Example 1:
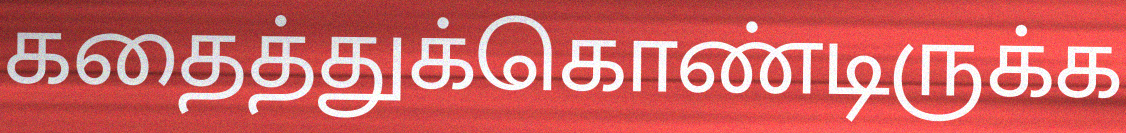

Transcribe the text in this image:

கதைத்துக்கொண்டிருக்க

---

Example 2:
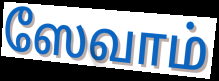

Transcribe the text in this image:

ஸேவாம்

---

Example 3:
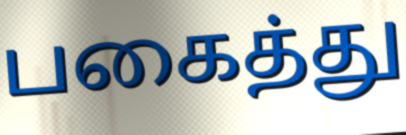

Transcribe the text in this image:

பகைத்து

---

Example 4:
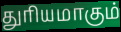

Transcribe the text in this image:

துரியமாகும்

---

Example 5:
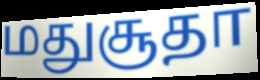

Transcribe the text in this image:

மதுசூதா